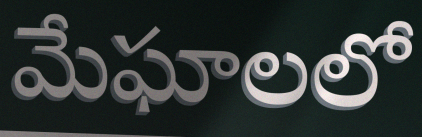
మేఘాలలో